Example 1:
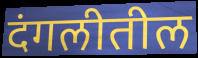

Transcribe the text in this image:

दंगलीतील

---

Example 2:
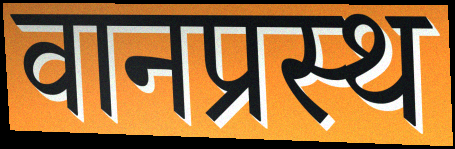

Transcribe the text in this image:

वानप्रस्थ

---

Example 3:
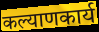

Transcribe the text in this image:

कल्याणकार्य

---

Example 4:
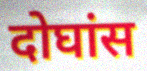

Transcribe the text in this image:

दोघांस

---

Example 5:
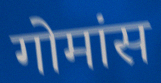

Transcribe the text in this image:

गोमांस